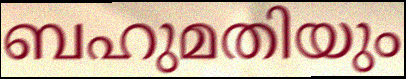
ബഹുമതിയും